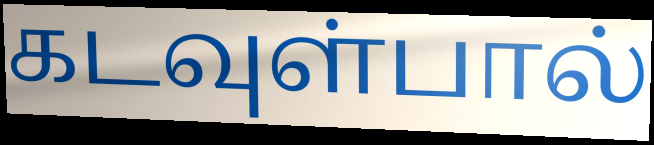
கடவுள்பால்